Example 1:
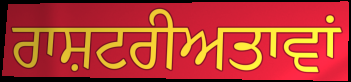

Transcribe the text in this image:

ਰਾਸ਼ਟਰੀਅਤਾਵਾਂ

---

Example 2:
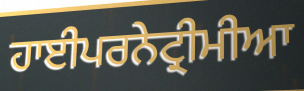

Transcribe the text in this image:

ਹਾਈਪਰਨੇਟ੍ਰੀਮੀਆ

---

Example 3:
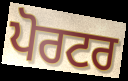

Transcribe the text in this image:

ਪੋਰਟਰ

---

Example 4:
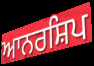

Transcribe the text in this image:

ਆਨਰਸ਼ਿਪ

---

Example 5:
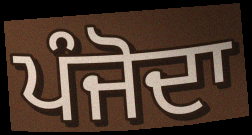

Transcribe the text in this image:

ਪੰਜੋਦਾ